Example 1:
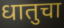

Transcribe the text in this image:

धातुचा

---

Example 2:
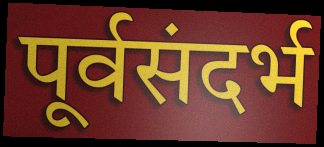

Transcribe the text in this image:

पूर्वसंदर्भ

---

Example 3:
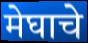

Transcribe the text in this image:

मेघाचे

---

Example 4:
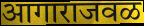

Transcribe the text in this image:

आगाराजवळ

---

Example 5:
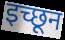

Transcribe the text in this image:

इच्छून